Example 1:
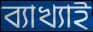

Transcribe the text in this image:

ব্যাখ্যাই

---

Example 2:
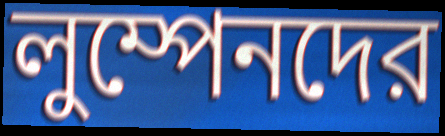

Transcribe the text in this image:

লুম্পেনদের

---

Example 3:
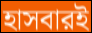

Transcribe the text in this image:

হাসবারই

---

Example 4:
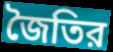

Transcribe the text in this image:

জৈতির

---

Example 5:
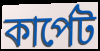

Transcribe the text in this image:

কার্পেট